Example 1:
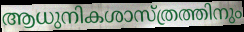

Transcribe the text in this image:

ആധുനികശാസ്ത്രത്തിനും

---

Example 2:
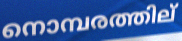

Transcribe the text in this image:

നൊമ്പരത്തില്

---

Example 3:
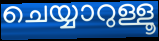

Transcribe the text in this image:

ചെയ്യാറുള്ളൂ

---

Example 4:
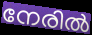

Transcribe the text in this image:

നേരിൽ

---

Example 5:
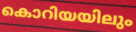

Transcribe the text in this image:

കൊറിയയിലും